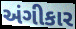
અંગીકાર